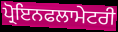
ਪ੍ਰੋਇਨਫਲਾਮੇਟਰੀ